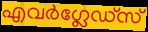
എവർഗ്ലേഡ്സ്